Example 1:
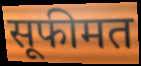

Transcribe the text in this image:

सूफीमत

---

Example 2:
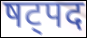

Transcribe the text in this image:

षट्पद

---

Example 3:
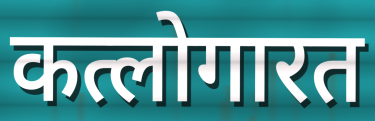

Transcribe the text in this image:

कत्लोगारत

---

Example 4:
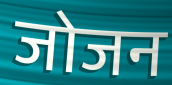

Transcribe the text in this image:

जोजन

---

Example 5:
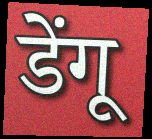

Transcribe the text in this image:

डेंगू